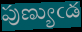
పుణ్యుఁడ